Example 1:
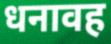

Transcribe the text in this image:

धनावह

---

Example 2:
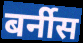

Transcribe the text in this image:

बर्नीस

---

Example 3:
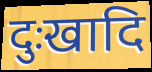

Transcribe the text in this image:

दुःखादि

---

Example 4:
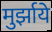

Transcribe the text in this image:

मुर्झाये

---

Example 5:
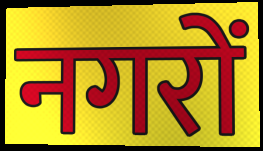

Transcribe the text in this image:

नगरों